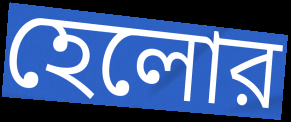
হেলোর